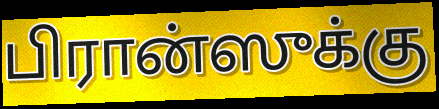
பிரான்ஸுக்கு